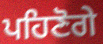
ਪਹਿਣੋਗੇ